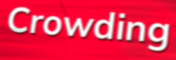
Crowding